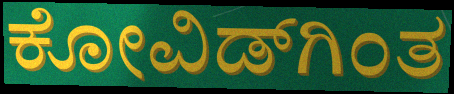
ಕೋವಿಡ್‌ಗಿಂತ